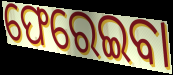
ଫେରେଇବା